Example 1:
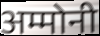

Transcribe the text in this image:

अम्मोनी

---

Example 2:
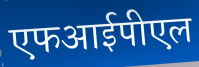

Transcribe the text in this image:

एफआईपीएल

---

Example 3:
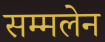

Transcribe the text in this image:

सम्मलेन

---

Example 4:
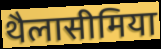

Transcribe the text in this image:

थैलासीमिया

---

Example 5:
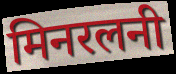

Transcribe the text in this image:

मिनरलनी